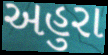
અહુરા